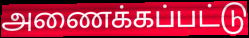
அணைக்கப்பட்டு